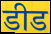
डीड